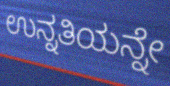
ಉನ್ನತಿಯನ್ನೇ